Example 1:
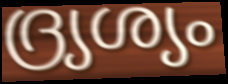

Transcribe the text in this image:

ദ്ര്യശ്യം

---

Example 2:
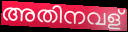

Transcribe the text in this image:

അതിനവള്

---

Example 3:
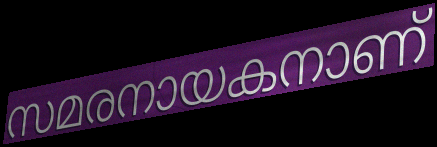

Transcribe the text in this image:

സമരനായകനാണ്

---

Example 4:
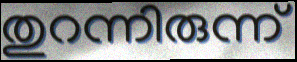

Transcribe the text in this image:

തുറന്നിരുന്ന്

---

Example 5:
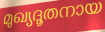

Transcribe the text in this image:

മുഖ്യദൂതനായ